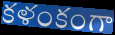
కళంకంగా